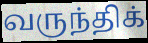
வருந்திக்